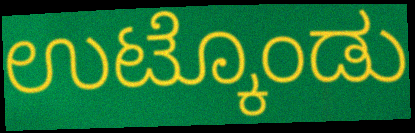
ಉಟ್ಕೊಂಡು